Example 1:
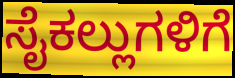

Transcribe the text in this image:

ಸೈಕಲ್ಲುಗಳಿಗೆ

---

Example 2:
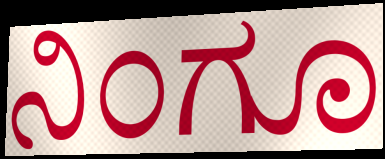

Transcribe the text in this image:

ನಿಂಗೂ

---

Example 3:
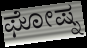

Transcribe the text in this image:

ಘೋಷ್ನ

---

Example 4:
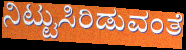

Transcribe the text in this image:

ನಿಟ್ಟುಸಿರಿಡುವಂತೆ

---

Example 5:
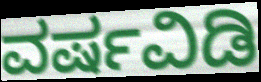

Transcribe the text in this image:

ವರ್ಷವಿಡಿ